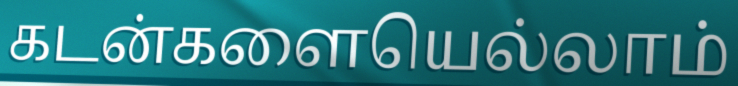
கடன்களையெல்லாம்